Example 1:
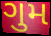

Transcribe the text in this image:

ગુમ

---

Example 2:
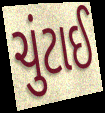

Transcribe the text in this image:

ચુંટાઈ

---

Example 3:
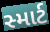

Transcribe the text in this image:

સ્માર્ટ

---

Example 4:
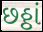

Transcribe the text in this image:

છઠ્ઠાં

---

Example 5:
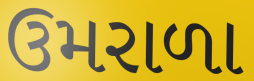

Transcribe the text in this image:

ઉમરાળા